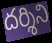
దర్శిని